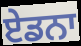
ਏਡਨਾ